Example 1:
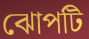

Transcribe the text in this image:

ঝোপটি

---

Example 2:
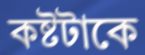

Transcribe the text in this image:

কষ্টটাকে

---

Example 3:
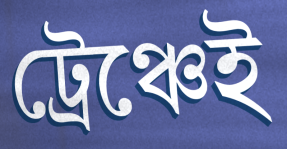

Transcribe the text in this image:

ট্রেঞ্চেই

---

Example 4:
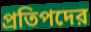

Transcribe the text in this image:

প্রতিপদের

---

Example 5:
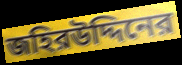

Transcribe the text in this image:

জহিরউদ্দিনের